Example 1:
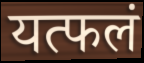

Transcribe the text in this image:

यत्फलं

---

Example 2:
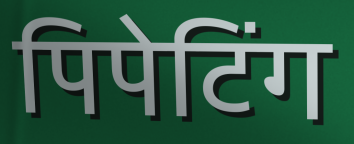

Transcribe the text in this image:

पिपेटिंग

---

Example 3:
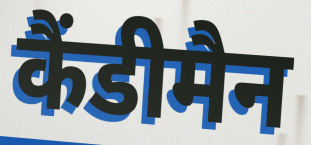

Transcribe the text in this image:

कैंडीमैन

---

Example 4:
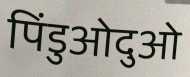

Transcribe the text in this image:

पिंडुओदुओ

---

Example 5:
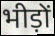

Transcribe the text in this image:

भीड़ों